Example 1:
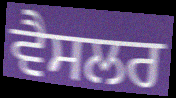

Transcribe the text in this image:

ਵੈਸਲਰ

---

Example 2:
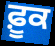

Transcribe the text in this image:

ਫ਼ੂਕ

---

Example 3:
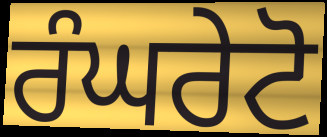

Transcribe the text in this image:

ਰੰਘਰੇਟੋ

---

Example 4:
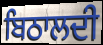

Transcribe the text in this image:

ਬਿਠਾਲਦੀ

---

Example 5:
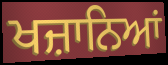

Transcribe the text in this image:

ਖਜ਼ਾਨਿਆਂ